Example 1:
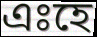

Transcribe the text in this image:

এঃহে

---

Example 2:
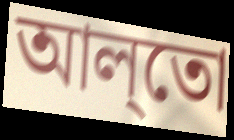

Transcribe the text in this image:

আল্‌তো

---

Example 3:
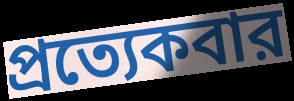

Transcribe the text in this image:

প্রত্যেকবার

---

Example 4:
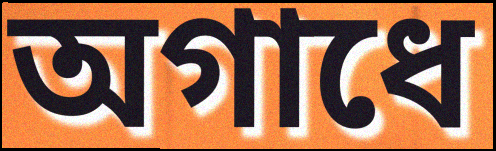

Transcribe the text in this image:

অগাধে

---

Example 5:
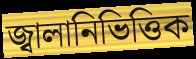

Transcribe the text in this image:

জ্বালানিভিত্তিক